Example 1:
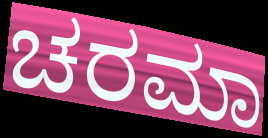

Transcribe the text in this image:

ಚರಮಾ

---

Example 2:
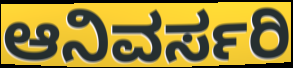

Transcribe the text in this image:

ಆನಿವರ್ಸರಿ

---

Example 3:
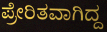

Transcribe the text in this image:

ಪ್ರೇರಿತವಾಗಿದ್ದ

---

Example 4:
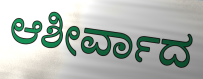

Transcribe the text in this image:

ಆಶೀರ್ವಾದ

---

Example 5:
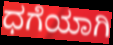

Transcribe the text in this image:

ಧಗೆಯಾಗಿ